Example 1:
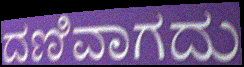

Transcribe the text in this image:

ದಣಿವಾಗದು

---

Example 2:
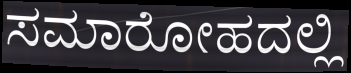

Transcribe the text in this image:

ಸಮಾರೋಹದಲ್ಲಿ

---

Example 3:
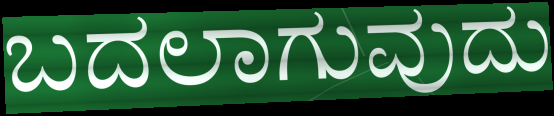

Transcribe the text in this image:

ಬದಲಾಗುವುದು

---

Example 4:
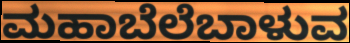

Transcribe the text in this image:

ಮಹಾಬೆಲೆಬಾಳುವ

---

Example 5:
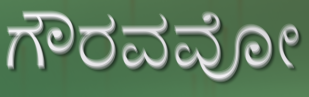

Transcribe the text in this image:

ಗೌರವವೋ